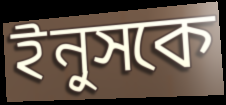
ইনুসকে